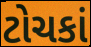
ટોચકાં